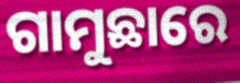
ଗାମୁଛାରେ